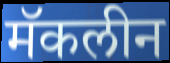
मॅकलीन